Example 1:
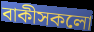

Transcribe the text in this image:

বাকীসকলো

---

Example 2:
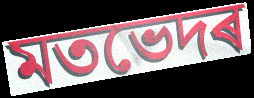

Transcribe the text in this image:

মতভেদৰ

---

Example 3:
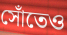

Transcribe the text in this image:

সোঁতেও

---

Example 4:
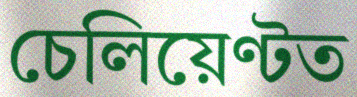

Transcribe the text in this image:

চেলিয়েণ্টত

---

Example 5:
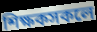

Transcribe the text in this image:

শিক্ষকসকলে